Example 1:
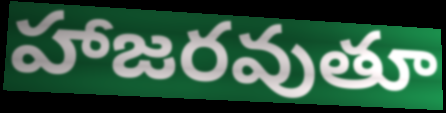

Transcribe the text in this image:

హాజరవుతూ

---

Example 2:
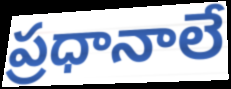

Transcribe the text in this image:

ప్రధానాలే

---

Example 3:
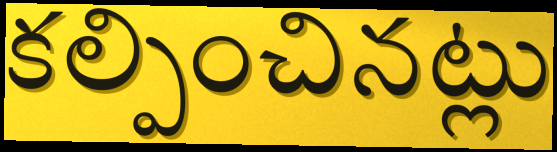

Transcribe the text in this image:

కల్పించినట్లు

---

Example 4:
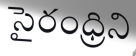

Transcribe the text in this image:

సైరంధ్రిని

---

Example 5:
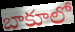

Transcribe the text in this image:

బాకూలో